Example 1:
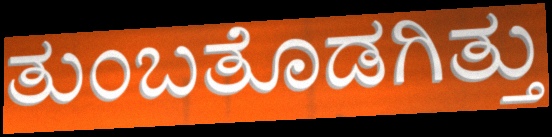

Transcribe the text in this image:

ತುಂಬತೊಡಗಿತ್ತು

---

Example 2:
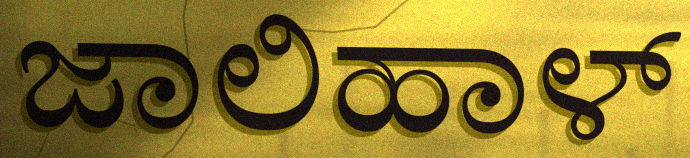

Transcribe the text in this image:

ಜಾಲಿಹಾಳ್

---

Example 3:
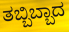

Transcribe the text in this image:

ತಬ್ಬಿಬ್ಬಾದ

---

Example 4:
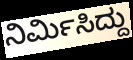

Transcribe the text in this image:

ನಿರ್ಮಿಸಿದ್ದು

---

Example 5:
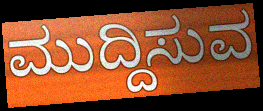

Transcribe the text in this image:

ಮುದ್ದಿಸುವ